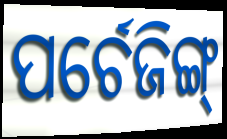
ପର୍ଚେଜିଙ୍ଗ୍